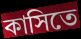
কাসিতে